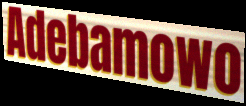
Adebamowo